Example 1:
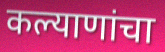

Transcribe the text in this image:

कल्याणांचा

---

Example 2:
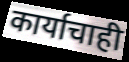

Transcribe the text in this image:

कार्याचाही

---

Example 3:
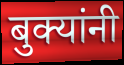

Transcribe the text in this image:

बुक्यांनी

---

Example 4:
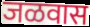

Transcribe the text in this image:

जळवास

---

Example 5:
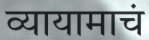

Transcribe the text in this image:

व्यायामाचं